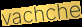
vachche